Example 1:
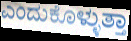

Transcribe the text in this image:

ಎಂದುಕೊಳ್ಳುತ್ತಾ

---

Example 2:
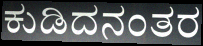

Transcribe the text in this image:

ಕುಡಿದನಂತರ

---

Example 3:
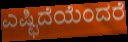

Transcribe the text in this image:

ಎಷ್ಟಿದೆಯೆಂದರೆ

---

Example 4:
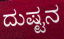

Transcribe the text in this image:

ದುಷ್ಟನ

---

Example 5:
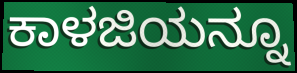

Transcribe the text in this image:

ಕಾಳಜಿಯನ್ನೂ